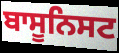
ਬਾਸੂਨਿਸਟ